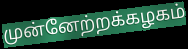
முன்னேற்றக்கழகம்